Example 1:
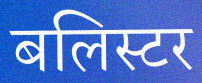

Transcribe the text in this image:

बलिस्टर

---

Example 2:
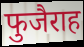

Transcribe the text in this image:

फुजैराह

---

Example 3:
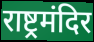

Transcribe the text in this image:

राष्ट्रमंदिर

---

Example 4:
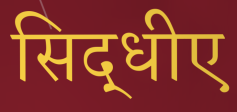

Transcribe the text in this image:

सिद्धीए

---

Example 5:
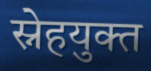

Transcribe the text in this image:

स्नेहयुक्त